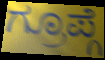
ಗ್ರೂಪ್ಗೆ